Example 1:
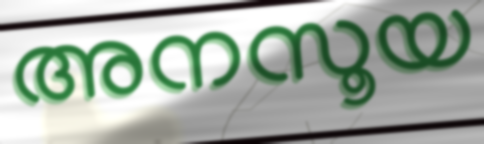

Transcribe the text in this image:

അനസൂയ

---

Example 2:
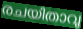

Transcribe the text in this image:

രചയിതാവു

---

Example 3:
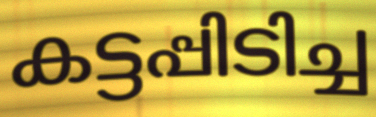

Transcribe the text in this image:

കട്ടപ്പിടിച്ച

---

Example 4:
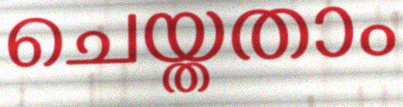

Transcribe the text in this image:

ചെയ്തതാം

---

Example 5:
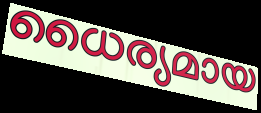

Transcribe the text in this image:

ധൈര്യമായ